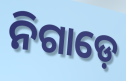
ନିଗାଡ଼େ